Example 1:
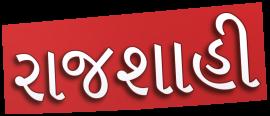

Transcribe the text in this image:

રાજશાહી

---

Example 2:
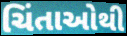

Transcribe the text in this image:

ચિંતાઓથી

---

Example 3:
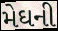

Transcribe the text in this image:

મેઘની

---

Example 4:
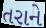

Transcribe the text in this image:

તરાને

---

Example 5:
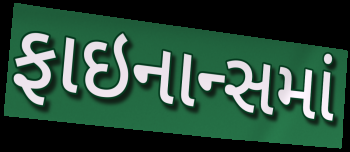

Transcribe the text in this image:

ફાઇનાન્સમાં